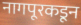
नागपूरकडून